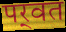
पर्वत